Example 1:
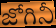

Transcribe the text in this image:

జోగినీ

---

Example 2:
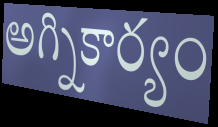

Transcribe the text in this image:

అగ్నికార్యం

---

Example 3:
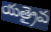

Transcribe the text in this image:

యత్రైవ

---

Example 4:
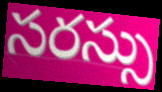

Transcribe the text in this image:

సరస్సు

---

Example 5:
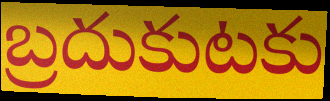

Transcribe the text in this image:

బ్రదుకుటకు